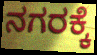
ನಗರಕ್ಕೆ